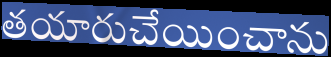
తయారుచేయించాను